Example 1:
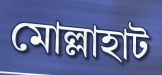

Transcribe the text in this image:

মোল্লাহাট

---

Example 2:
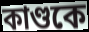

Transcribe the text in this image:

কাণ্ডকে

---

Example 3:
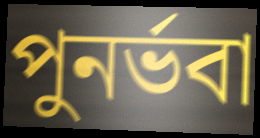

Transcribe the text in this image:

পুনর্ভবা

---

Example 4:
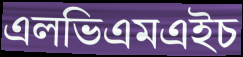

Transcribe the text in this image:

এলভিএমএইচ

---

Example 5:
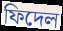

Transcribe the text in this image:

ফিদেল